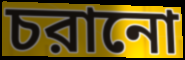
চরানো